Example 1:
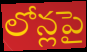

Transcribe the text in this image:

లోన్లపై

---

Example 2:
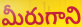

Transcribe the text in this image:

మీరుగాని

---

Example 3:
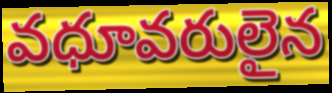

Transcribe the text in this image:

వధూవరులైన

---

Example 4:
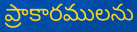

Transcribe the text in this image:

ప్రాకారములను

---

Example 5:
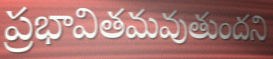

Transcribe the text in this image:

ప్రభావితమవుతుందని